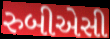
રુબીએસી